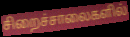
சிறைச்சாலைகளில்